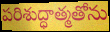
పరిశుద్ధాత్మతోను